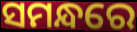
ସମନ୍ଧରେ